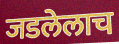
जडलेलाच